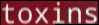
toxins